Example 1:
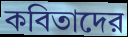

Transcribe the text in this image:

কবিতাদের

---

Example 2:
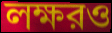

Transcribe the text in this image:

লক্ষরও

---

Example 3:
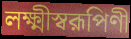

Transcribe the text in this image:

লক্ষ্মীস্বরূপিণী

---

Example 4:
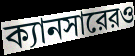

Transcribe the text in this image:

ক্যানসারেরও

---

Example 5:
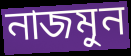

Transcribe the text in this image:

নাজমুন